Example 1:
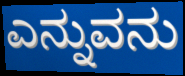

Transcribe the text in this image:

ಎನ್ನುವನು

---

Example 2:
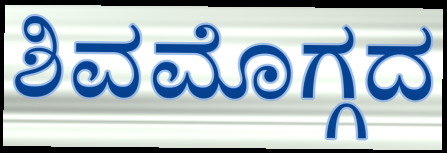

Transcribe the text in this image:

ಶಿವಮೊಗ್ಗದ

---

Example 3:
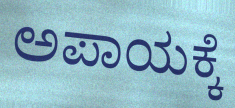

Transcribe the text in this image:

ಅಪಾಯಕ್ಕೆ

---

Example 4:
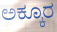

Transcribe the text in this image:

ಅಕ್ಕೂರ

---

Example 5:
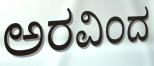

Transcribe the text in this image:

ಅರವಿಂದ